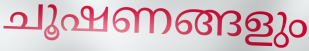
ചൂഷണങ്ങളും